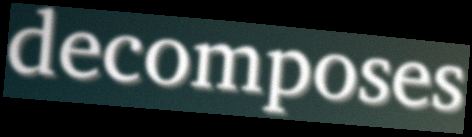
decomposes